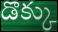
డొక్కు